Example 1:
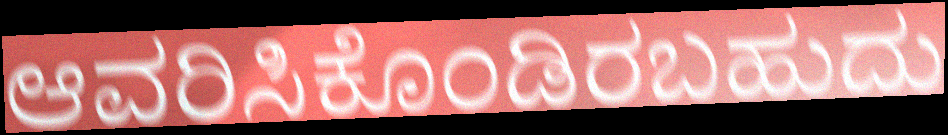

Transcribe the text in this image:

ಆವರಿಸಿಕೊಂಡಿರಬಹುದು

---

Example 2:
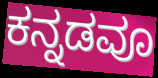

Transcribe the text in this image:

ಕನ್ನಡವೂ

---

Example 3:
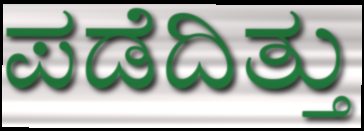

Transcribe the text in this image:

ಪಡೆದಿತ್ತು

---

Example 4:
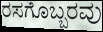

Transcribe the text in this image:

ರಸಗೊಬ್ಬರವು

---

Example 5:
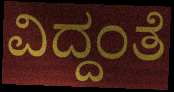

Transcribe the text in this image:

ವಿದ್ದಂತೆ